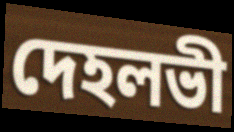
দেহলভী